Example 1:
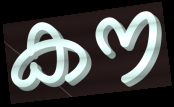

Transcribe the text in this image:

കൗ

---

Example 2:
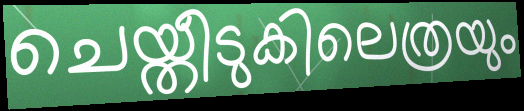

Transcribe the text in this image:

ചെയ്തീടുകിലെത്രയും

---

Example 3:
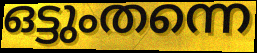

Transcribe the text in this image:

ഒട്ടുംതന്നെ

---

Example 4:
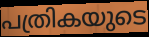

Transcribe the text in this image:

പത്രികയുടെ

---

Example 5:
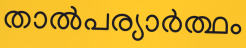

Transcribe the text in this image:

താൽപര്യാർത്ഥം